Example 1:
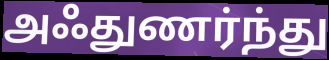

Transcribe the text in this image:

அஃதுணர்ந்து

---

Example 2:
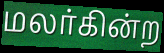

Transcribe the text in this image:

மலர்கின்ற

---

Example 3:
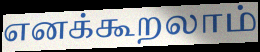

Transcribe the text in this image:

எனக்கூறலாம்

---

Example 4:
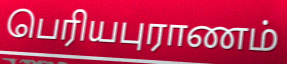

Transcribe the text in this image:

பெரியபுராணம்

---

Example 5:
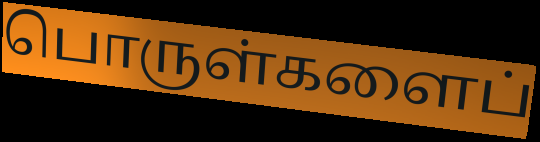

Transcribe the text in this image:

பொருள்களைப்